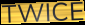
TWICE